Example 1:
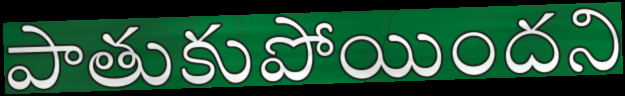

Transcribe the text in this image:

పాతుకుపోయిందని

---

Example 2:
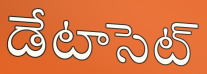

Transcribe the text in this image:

డేటాసెట్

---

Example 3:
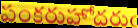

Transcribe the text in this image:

పంకరుహోదరుఁ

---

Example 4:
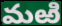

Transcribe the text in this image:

మఱి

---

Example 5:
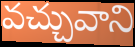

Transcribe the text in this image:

వచ్చువాని